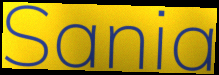
Sania